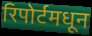
रिपोर्टमधून